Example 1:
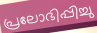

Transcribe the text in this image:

പ്രലോഭിപ്പിച്ചു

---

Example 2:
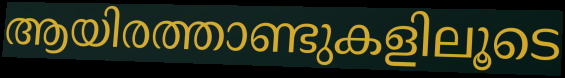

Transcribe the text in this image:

ആയിരത്താണ്ടുകളിലൂടെ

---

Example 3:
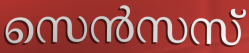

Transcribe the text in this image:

സെൻസസ്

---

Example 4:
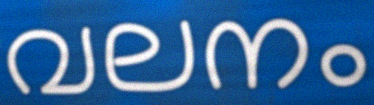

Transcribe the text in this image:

വലനം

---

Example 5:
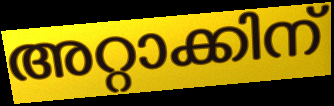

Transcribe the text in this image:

അറ്റാക്കിന്